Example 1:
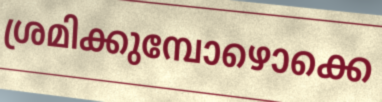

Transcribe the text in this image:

ശ്രമിക്കുമ്പോഴൊക്കെ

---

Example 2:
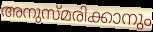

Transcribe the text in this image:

അനുസ്മരിക്കാനും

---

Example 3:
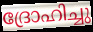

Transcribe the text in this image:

ദ്രോഹിച്ചു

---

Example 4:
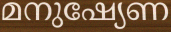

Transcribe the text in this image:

മനുഷ്യേണ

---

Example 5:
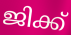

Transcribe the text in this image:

ജിക്ക്